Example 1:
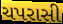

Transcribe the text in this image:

ચપરાસી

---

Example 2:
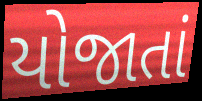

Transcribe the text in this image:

યોજાતાં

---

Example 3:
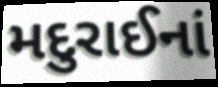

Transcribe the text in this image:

મદુરાઈનાં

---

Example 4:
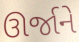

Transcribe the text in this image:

ઊર્જાને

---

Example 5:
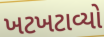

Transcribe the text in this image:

ખટખટાવ્યો